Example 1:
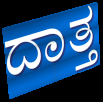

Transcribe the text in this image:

ದಾತ್ತ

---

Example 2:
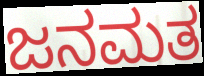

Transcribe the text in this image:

ಜನಮತ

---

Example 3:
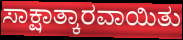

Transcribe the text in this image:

ಸಾಕ್ಷಾತ್ಕಾರವಾಯಿತು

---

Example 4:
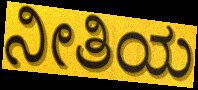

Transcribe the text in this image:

ನೀತಿಯ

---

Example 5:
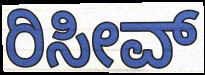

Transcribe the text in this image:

ರಿಸೀವ್